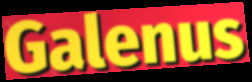
Galenus